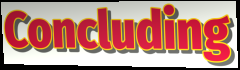
Concluding